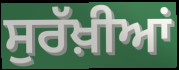
ਸੁਰੱਖ਼ੀਆਂ